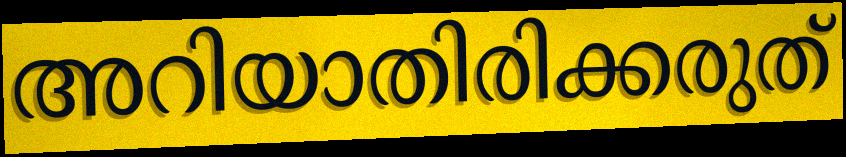
അറിയാതിരിക്കരുത്